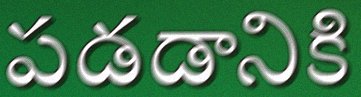
పడడానికి